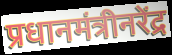
प्रधानमंत्रीनरेंद्र